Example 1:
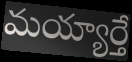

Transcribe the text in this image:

మయ్యార్తే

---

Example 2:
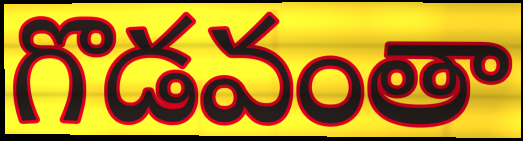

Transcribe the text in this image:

గొడవంతా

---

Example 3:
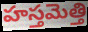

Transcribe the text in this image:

హస్తమెత్తి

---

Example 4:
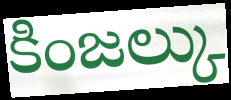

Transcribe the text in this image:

కింజల్కు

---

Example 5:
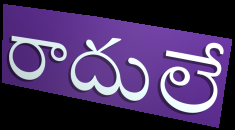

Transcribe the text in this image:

రాదులే